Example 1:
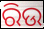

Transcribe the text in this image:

ରିଉ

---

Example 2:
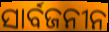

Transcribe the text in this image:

ସାର୍ବଜନୀନ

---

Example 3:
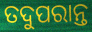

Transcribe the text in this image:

ତଦୁପରାନ୍ତ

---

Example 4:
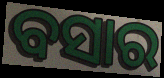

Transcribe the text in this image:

ବସାର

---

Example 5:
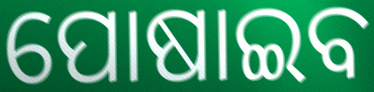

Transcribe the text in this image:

ପୋଷାଇବ